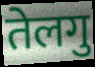
तेलगु